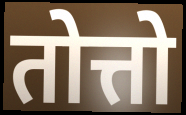
तोत्तो